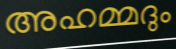
അഹമ്മദും